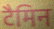
टैमिन